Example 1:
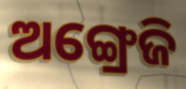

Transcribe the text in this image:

ଅଙ୍ଗ୍ରେଜି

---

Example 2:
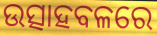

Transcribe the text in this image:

ଉତ୍ସାହବଳରେ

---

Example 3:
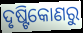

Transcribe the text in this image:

ଦୃଷ୍ଟିକୋଣରୁ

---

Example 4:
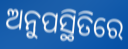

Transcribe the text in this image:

ଅନୁପସ୍ଥିତିରେ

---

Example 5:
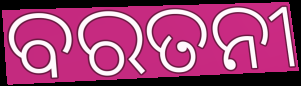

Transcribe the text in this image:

ବରତନୀ